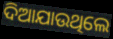
ଦିଆଯାଉଥିଲେ